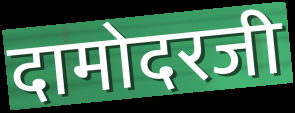
दामोदरजी